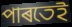
পাৰতেই